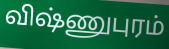
விஷ்ணுபுரம்